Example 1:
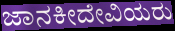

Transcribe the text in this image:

ಜಾನಕೀದೇವಿಯರು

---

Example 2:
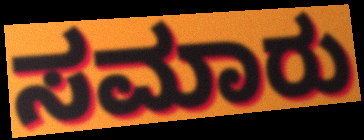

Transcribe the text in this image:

ಸಮಾರು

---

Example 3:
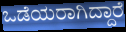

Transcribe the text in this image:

ಒಡೆಯರಾಗಿದ್ದಾರೆ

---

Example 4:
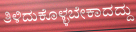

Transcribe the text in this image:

ತಿಳಿದುಕೊಳ್ಳಬೇಕಾದದ್ದು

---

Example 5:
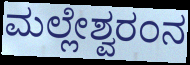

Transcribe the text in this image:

ಮಲ್ಲೇಶ್ವರಂನ